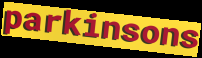
parkinsons